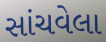
સાંચવેલા